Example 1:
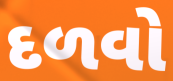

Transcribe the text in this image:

દળવો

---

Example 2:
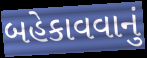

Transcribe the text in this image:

બહેકાવવાનું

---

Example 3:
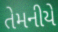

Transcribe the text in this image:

તેમનીયે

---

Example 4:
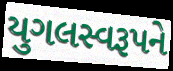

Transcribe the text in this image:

યુગલસ્વરૂપને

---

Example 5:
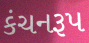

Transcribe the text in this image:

કંચનરૂપ